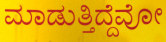
ಮಾಡುತ್ತಿದ್ದೆವೋ